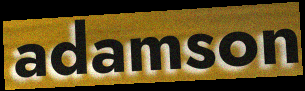
adamson